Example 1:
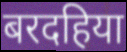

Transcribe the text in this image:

बरदहिया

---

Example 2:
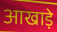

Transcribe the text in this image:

आखाड़े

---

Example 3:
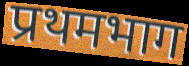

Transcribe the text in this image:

प्रथमभाग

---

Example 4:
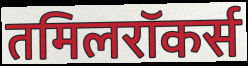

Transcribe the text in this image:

तमिलरॉकर्स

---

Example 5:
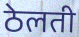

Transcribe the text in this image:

ठेलती